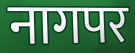
नागपर